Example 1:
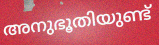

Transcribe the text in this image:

അനുഭൂതിയുണ്ട്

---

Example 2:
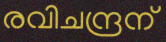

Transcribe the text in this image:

രവിചന്ദ്രന്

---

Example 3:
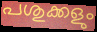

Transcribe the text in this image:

പശുക്കളും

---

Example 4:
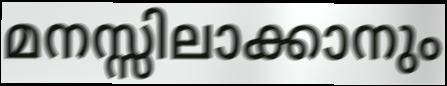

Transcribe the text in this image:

മനസ്സിലാക്കാനും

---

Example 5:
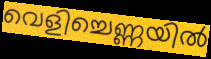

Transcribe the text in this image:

വെളിച്ചെണ്ണയിൽ